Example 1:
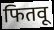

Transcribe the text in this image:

फितवू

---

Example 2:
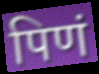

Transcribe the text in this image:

पिणं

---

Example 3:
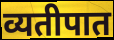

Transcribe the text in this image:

व्यतीपात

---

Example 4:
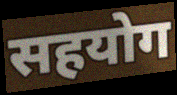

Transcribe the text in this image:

सहयोग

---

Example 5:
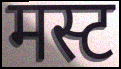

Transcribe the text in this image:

मस्ट